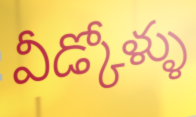
వీడ్కోళ్ళు